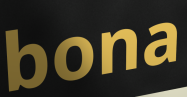
bona